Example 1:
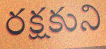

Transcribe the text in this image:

రక్షకుని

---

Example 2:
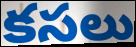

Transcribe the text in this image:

కసలు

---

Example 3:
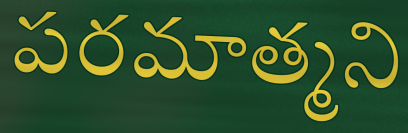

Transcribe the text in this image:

పరమాత్మని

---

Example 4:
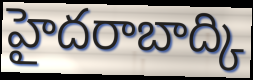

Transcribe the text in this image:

హైదరాబాద్కి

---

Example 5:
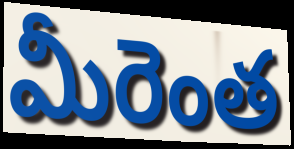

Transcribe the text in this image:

మీరెంత